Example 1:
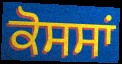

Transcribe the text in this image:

ਕੋਸਸਾਂ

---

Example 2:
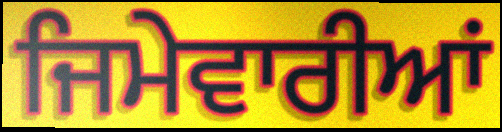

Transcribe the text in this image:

ਜਿਮੇਵਾਰੀਆਂ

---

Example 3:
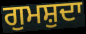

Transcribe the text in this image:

ਗੁਮਸ਼ੁਦਾ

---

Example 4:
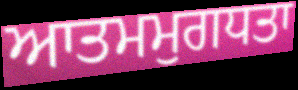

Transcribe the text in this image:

ਆਤਮਮੁਗਧਤਾ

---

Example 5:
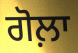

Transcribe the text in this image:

ਗੋਲ਼ਾ